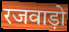
रजवाड़ो